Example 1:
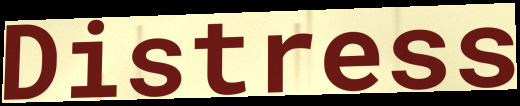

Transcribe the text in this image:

Distress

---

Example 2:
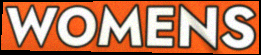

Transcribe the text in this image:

WOMENS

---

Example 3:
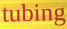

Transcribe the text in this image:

tubing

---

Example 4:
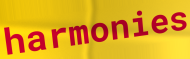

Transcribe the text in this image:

harmonies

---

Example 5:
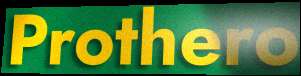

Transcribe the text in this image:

Prothero